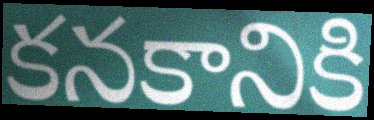
కనకానికి